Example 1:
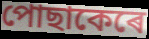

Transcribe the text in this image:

পোছাকেৰে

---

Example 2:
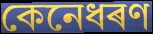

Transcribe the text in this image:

কেনেধৰণ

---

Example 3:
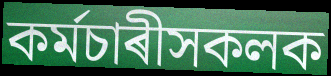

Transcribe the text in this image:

কৰ্মচাৰীসকলক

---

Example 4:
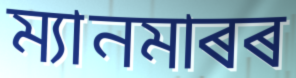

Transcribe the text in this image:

ম্যানমাৰৰ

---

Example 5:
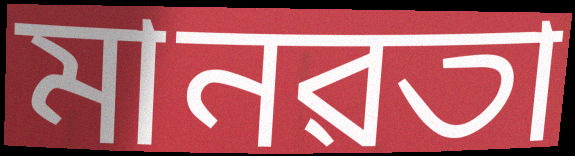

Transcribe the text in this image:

মানৱতা